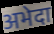
अभेदा